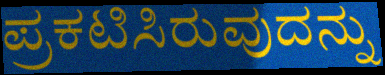
ಪ್ರಕಟಿಸಿರುವುದನ್ನು